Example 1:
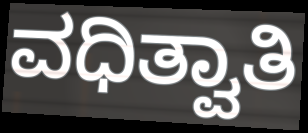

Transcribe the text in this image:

ವಧಿತ್ವಾತಿ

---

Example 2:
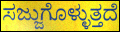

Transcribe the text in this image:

ಸಜ್ಜುಗೊಳ್ಳುತ್ತದೆ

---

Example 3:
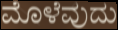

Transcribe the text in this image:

ಮೊಳೆವುದು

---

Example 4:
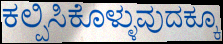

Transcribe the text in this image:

ಕಲ್ಪಿಸಿಕೊಳ್ಳುವುದಕ್ಕೂ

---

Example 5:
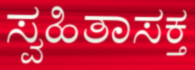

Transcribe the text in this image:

ಸ್ವಹಿತಾಸಕ್ತ